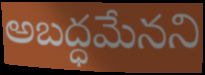
అబద్ధమేనని